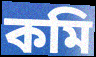
কমি